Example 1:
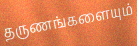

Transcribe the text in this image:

தருணங்களையும்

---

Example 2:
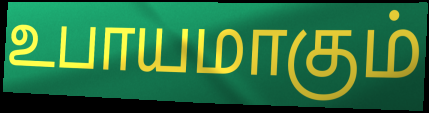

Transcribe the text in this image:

உபாயமாகும்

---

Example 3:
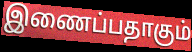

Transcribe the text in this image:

இணைப்பதாகும்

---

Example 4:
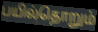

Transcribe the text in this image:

பயில்தொறும்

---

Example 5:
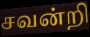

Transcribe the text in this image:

சவன்றி